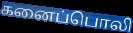
கனைப்பொலி